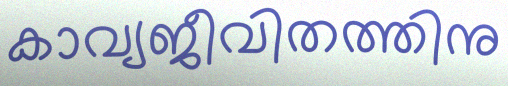
കാവ്യജീവിതത്തിനു